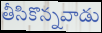
తీసికొన్నవాడు